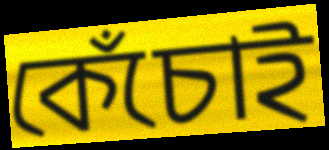
কেঁচোই